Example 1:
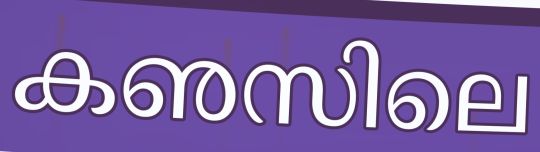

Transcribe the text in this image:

കഌസിലെ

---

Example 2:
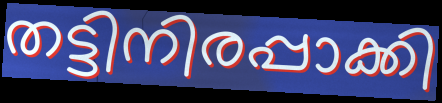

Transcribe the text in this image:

തട്ടിനിരപ്പാക്കി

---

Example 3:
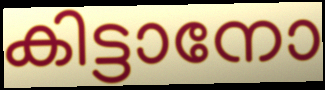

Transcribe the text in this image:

കിട്ടാനോ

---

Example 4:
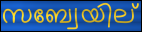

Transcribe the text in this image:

സബ്വേയില്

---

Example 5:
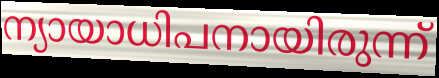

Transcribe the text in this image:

ന്യായാധിപനായിരുന്ന്